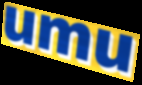
umu